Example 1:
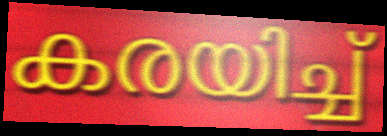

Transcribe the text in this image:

കരയിച്ച്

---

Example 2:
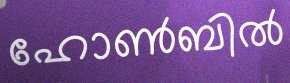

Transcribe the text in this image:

ഹോൺബിൽ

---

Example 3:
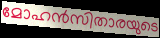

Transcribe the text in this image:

മോഹൻസിതാരയുടെ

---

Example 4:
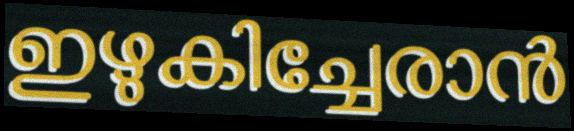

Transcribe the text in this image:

ഇഴുകിച്ചേരാൻ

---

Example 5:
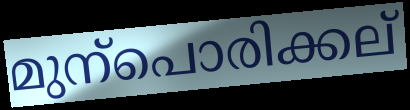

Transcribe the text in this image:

മുന്പൊരിക്കല്